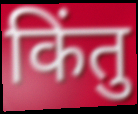
किंतु